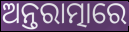
ଅନ୍ତରାତ୍ମାରେ